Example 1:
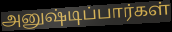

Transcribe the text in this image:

அனுஷ்டிப்பார்கள்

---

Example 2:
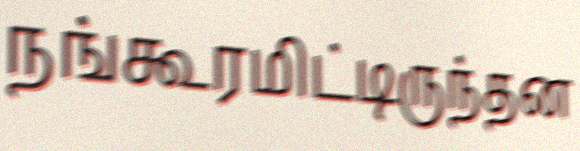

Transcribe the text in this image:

நங்கூரமிட்டிருந்தன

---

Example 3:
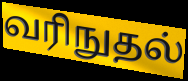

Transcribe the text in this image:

வரிநுதல்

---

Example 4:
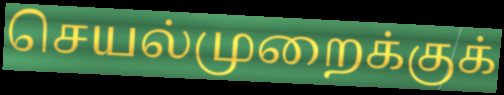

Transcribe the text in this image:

செயல்முறைக்குக்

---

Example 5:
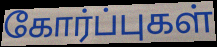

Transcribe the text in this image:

கோர்ப்புகள்